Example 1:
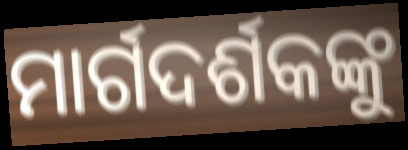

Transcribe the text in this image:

ମାର୍ଗଦର୍ଶକଙ୍କୁ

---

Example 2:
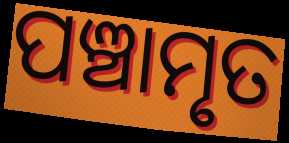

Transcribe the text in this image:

ପଞ୍ଚାମୃତ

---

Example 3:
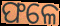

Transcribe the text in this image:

ଫଳେ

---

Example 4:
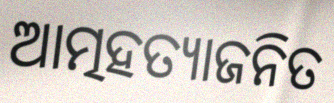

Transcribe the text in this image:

ଆତ୍ମହତ୍ୟାଜନିତ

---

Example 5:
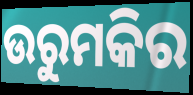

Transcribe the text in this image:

ଉରୁମକିର